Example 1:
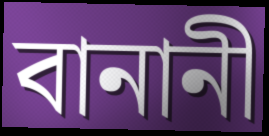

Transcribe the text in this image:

বানানী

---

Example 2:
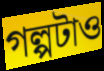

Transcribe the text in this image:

গল্পটাও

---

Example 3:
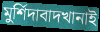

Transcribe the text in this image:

মুর্শিদাবাদখানাই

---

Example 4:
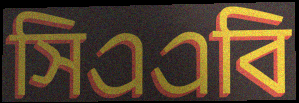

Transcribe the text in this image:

সিএএবি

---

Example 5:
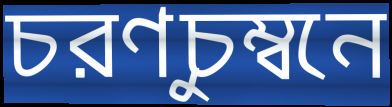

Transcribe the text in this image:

চরণচুম্বনে